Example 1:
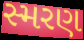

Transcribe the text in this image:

સ્‍મરણ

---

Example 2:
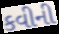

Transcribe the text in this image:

કવીની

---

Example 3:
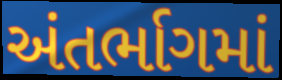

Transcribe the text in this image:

અંતર્ભાગમાં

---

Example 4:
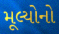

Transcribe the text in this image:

મૂલ્યોનો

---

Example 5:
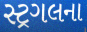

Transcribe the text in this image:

સ્ટ્રગલના